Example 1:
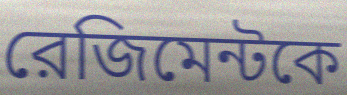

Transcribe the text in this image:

রেজিমেন্টকে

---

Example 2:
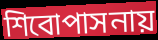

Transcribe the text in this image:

শিবোপাসনায়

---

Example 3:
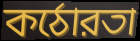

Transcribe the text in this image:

কঠোরতা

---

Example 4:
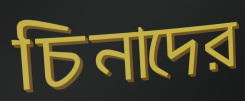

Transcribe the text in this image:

চিনাদের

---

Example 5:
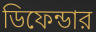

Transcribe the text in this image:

ডিফেন্ডার